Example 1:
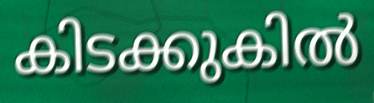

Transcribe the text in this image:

കിടക്കുകിൽ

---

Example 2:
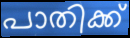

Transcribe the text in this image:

പാതിക്ക്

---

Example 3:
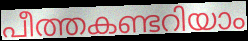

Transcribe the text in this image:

പീത്തകണ്ടറിയാം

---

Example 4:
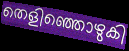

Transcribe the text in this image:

തെളിഞ്ഞൊഴുകി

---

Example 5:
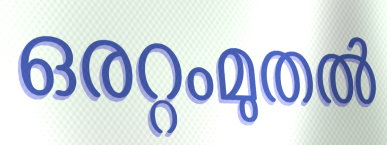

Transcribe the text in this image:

ഒരറ്റംമുതൽ